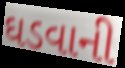
ઘડવાની